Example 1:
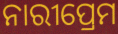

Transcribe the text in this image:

ନାରୀପ୍ରେମ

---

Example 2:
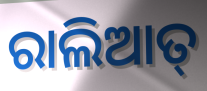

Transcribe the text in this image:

ରାଲିଆତ୍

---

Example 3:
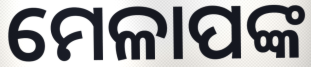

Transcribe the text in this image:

ମେଳାପଙ୍କ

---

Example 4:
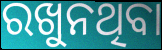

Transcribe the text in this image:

ରଖୁନଥିବା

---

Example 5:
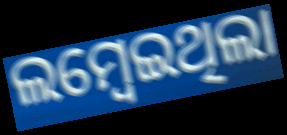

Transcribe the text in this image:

ଲମ୍ବେଇଥିଲା